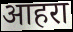
आहरा